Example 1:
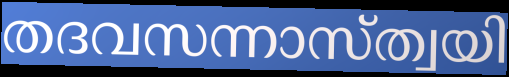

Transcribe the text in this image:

തദവസന്നാസ്ത്വയി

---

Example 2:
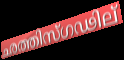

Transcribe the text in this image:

ഛത്തിസ്ഗഢില്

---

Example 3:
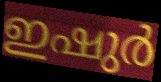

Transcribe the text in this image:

ഇഷുർ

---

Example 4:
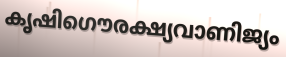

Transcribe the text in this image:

കൃഷിഗൌരക്ഷ്യവാണിജ്യം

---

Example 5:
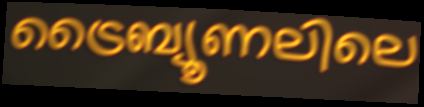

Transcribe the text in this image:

ട്രൈബ്യൂണലിലെ